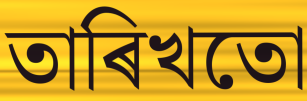
তাৰিখতো